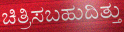
ಚಿತ್ರಿಸಬಹುದಿತ್ತು